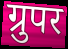
ग्रुपर